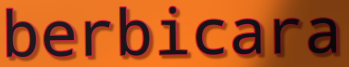
berbicara